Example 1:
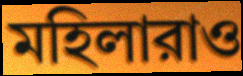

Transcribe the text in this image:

মহিলারাও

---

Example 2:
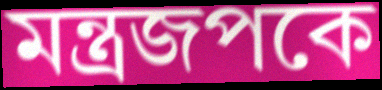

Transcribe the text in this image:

মন্ত্রজপকে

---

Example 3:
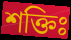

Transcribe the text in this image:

শক্তিঃ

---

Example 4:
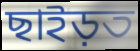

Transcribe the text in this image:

ছাইড়ত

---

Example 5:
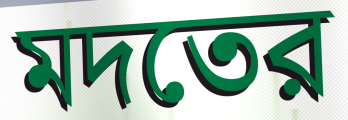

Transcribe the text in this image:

মদতের